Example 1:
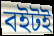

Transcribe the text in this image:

বইটই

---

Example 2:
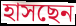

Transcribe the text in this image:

হাসছেন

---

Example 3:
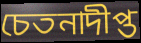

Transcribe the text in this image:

চেতনাদীপ্ত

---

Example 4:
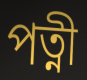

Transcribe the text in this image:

পত্নী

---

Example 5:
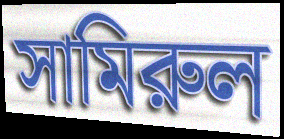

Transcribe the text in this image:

সামিরুল